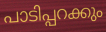
പാടിപ്പറക്കും